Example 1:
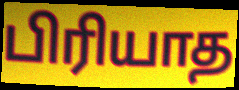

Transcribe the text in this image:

பிரியாத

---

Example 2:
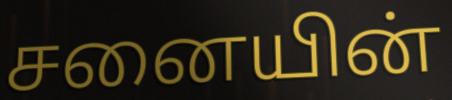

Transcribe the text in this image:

சனையின்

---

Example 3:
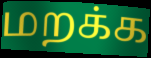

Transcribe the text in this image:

மறக்க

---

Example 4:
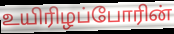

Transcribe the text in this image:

உயிரிழப்போரின்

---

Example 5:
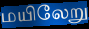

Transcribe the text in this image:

மயிலேறு